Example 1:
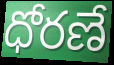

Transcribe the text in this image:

ధోరణే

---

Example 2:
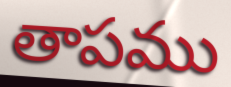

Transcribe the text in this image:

తాపము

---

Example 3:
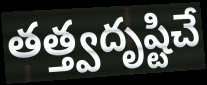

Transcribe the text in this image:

తత్త్వదృష్టిచే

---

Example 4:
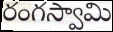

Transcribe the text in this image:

రంగస్వామి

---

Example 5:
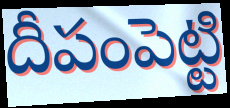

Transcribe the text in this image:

దీపంపెట్టి